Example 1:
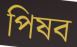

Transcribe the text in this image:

পিষব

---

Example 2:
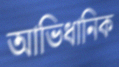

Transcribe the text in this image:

আভিধানিক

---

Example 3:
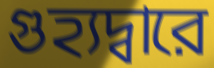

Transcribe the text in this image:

গুহ্যদ্বারে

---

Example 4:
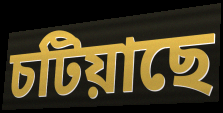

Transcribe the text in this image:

চটিয়াছে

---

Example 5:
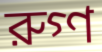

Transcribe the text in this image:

রুগ্ণ